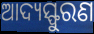
ଆଦ୍ୟସ୍ଫୁରଣ